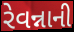
રેવન્નાની